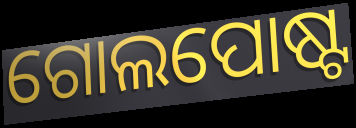
ଗୋଲପୋଷ୍ଟ